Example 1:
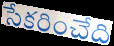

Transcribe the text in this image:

సేకరించేది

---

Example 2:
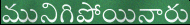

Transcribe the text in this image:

మునిగిపోయినారు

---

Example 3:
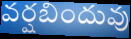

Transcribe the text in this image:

వర్షబిందువు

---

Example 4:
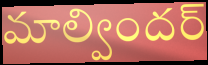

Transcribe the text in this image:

మాల్విందర్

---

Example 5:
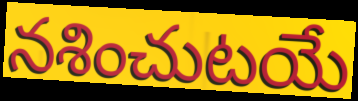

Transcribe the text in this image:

నశించుటయే